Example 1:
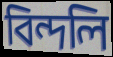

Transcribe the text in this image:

বিন্দলি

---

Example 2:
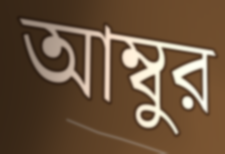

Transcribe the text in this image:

আম্বুর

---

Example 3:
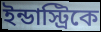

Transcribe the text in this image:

ইন্ডাস্ট্রিকে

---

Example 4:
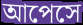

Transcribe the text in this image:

আপেসে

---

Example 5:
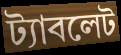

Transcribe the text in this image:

ট্যাবলেট